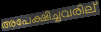
അപേക്ഷിച്ചവരില്